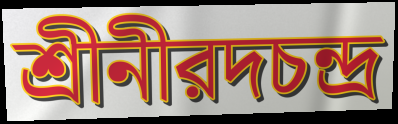
শ্রীনীরদচন্দ্র